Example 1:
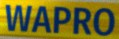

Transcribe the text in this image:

WAPRO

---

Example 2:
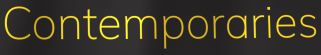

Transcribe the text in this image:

Contemporaries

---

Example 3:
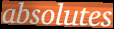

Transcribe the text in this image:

absolutes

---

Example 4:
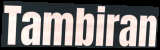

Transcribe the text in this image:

Tambiran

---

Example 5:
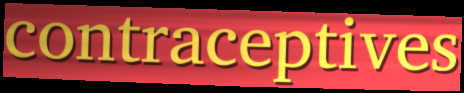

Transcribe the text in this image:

contraceptives